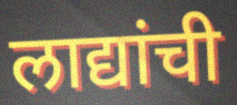
लाद्यांची